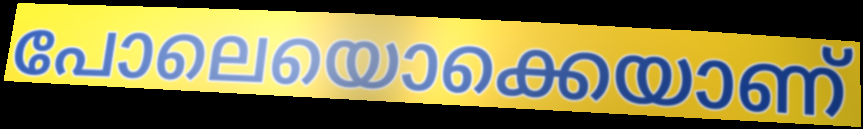
പോലെയൊക്കെയാണ്